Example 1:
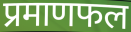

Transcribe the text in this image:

प्रमाणफल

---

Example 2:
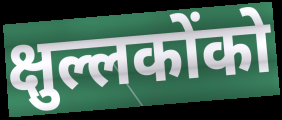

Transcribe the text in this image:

क्षुल्लकोंको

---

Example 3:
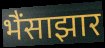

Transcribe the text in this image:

भैंसाझार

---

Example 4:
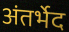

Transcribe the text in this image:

अंतर्भेद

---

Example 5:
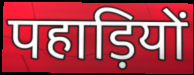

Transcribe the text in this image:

पहाड़ियों